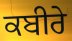
ਕਬੀਰੇ